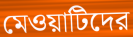
মেওয়াটিদের